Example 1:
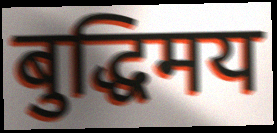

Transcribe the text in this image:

बुद्धिमय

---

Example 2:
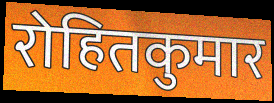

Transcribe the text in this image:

रोहितकुमार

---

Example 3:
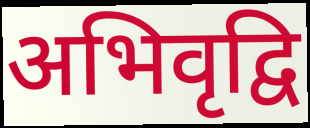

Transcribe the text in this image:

अभिवृद्वि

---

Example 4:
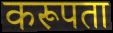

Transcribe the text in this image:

करूपता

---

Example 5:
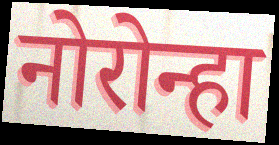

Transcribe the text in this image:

नोरोन्हा